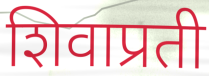
शिवाप्रती